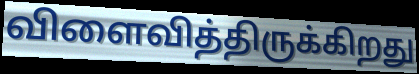
விளைவித்திருக்கிறது